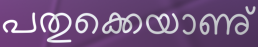
പതുക്കെയാണു്